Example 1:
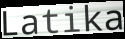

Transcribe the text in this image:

Latika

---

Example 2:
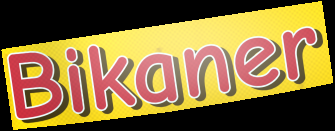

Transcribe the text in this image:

Bikaner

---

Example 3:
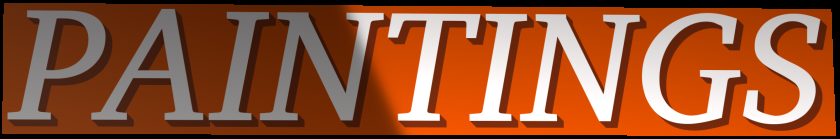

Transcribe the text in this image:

PAINTINGS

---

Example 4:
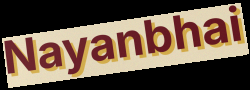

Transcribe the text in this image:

Nayanbhai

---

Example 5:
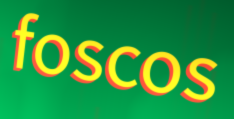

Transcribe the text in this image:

foscos